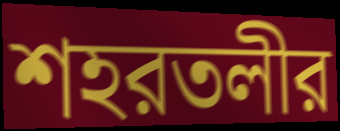
শহরতলীর